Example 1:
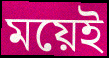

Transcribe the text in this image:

ময়েই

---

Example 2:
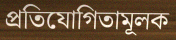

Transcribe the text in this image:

প্ৰতিযোগিতামূলক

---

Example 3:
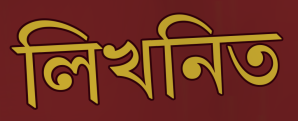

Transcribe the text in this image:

লিখনিত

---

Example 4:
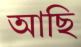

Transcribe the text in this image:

আছি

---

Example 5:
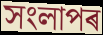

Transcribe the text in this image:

সংলাপৰ